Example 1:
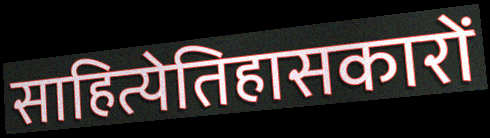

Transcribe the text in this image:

साहित्येतिहासकारों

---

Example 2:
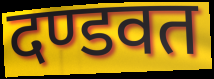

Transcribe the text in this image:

दण्‍डवत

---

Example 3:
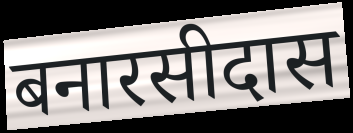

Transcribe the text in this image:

बनारसीदास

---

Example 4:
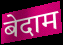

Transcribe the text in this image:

बेदाम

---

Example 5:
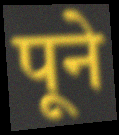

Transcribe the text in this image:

पूने